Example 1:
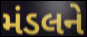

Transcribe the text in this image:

મંડલને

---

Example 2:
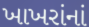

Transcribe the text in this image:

ખાખરાંનાં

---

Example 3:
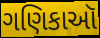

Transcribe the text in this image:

ગણિકાઑ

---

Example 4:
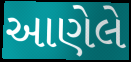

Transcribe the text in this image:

આણેલે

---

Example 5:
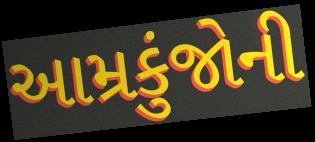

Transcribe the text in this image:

આમ્રકુંજોની